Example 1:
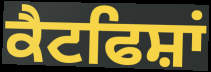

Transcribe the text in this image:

ਕੈਟਫਿਸ਼ਾਂ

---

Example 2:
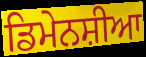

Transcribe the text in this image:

ਡਿਮੇਨਸ਼ੀਆ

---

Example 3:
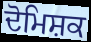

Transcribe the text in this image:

ਦੋਮਿਸ਼ਕ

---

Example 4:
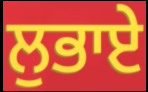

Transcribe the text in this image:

ਲੁਭਾਏ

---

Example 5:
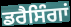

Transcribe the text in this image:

ਡਰੈਸਿੰਗਾਂ